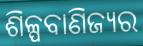
ଶିଳ୍ପବାଣିଜ୍ୟର